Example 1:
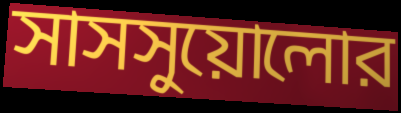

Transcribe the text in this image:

সাসসুয়োলোর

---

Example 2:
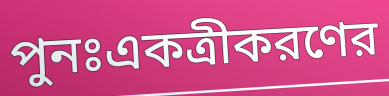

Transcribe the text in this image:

পুনঃএকত্রীকরণের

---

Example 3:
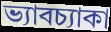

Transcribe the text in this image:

ভ্যাবচ্যাকা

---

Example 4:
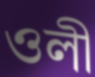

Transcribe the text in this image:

ওলী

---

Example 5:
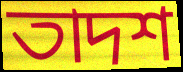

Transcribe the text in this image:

তাদশ